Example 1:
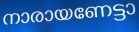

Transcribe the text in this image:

നാരായണേട്ടാ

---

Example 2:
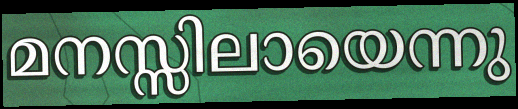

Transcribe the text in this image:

മനസ്സിലായെന്നു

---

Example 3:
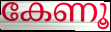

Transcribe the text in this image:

കേണൂ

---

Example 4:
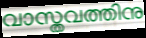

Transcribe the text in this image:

വാസ്തവത്തിനു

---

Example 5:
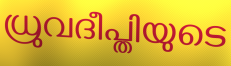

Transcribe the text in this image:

ധ്രുവദീപ്തിയുടെ